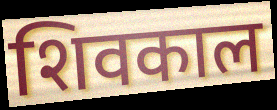
शिवकाल